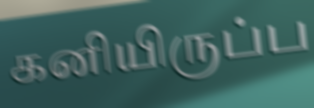
கனியிருப்ப